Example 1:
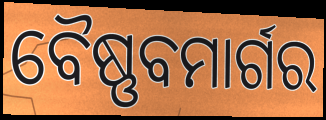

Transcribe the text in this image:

ବୈଷ୍ଣବମାର୍ଗର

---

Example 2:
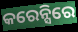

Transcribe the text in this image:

କରେନ୍ସିରେ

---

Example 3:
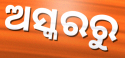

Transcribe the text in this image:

ଅସ୍କରରୁ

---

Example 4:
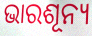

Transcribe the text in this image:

ଭାରଶୂନ୍ୟ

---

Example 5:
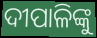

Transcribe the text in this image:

ଦୀପାଳିଙ୍କୁ